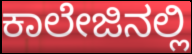
ಕಾಲೇಜಿನಲ್ಲಿ